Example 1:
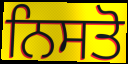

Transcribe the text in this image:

ਨਿਸਤੋ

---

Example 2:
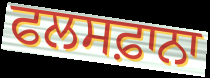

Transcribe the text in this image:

ਫਲਸਫ਼ਾਨਾ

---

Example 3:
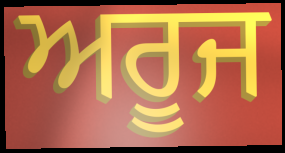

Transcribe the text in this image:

ਅਰੂਜ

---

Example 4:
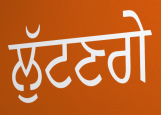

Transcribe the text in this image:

ਲੁੱਟਣਗੇ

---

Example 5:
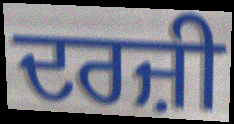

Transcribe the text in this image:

ਦਰਜ਼ੀ